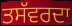
ਤਸੱਵਰਦਾ